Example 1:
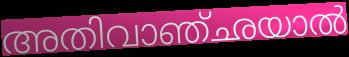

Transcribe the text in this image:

അതിവാഞ്ഛയാൽ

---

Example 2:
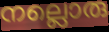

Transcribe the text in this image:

നല്ലൊരു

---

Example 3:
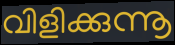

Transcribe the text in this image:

വിളിക്കുന്നൂ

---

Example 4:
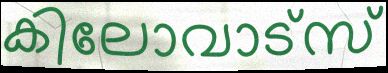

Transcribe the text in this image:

കിലോവാട്സ്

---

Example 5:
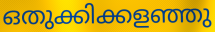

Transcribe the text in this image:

ഒതുക്കിക്കളഞ്ഞു